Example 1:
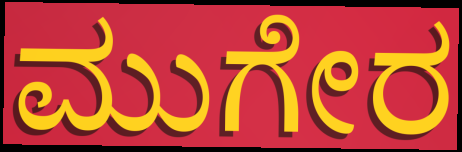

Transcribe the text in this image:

ಮುಗೇರ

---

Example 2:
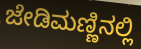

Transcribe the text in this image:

ಜೇಡಿಮಣ್ಣಿನಲ್ಲಿ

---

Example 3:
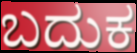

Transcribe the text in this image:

ಬದುಕ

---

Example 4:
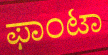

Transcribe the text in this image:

ಫಾಂಟಾ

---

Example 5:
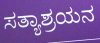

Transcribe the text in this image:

ಸತ್ಯಾಶ್ರಯನ